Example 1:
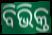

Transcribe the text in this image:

ବିଭିକ୍ତ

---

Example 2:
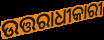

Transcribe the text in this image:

ଉତ୍ତରାଧୀକାରୀ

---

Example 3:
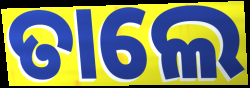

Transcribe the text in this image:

ତାଲେ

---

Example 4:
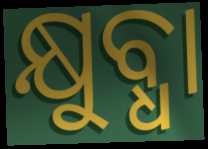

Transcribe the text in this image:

କ୍ଷୁବ୍ଧା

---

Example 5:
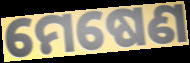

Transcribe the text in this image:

ମେଷେଣ